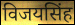
विजयसिंह